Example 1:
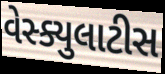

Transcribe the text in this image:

વેસ્ક્યુલાટીસ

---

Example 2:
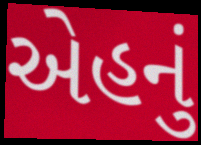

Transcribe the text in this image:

એહનું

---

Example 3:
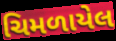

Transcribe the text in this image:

ચિમળાયેલ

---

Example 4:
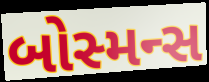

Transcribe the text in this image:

બોસ્મન્સ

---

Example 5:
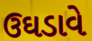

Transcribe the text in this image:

ઉઘડાવે